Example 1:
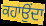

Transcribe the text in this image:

ਕਹਾਉਂਦਾ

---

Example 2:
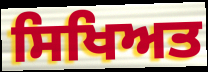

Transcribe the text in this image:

ਸਿਖਿਅਤ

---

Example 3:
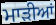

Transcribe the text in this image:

ਮਾੜੀਆਂ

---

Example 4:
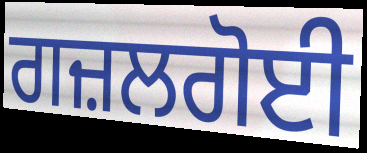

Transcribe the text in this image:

ਗਜ਼ਲਗੋਈ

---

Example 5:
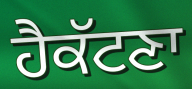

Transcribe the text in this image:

ਹੈਕੱਟਣਾ